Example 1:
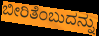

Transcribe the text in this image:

ಬೀರಿತೆಂಬುದನ್ನು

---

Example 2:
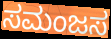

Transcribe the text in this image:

ಸಮಂಜಸ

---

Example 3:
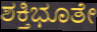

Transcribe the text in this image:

ಶಕ್ತಿಭೂತೇ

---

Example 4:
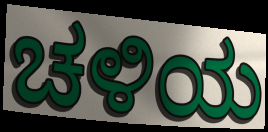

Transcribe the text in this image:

ಚಳಿಯ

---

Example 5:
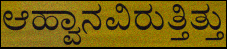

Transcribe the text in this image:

ಆಹ್ವಾನವಿರುತ್ತಿತ್ತು